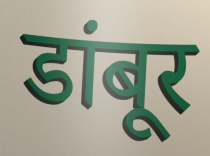
डांबूर